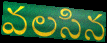
వలసిన